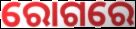
ରୋଗରେ